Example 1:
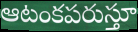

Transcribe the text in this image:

ఆటంకపరుస్తూ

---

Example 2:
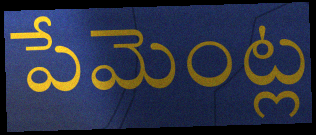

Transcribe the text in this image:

పేమెంట్ల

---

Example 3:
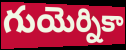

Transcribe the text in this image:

గుయెర్నికా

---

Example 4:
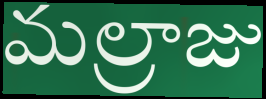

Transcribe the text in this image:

మల్రాజు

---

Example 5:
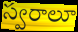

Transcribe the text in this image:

స్వరాలూ